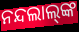
ନନ୍ଦଲାଲ୍‌ଙ୍କ